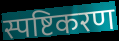
स्पष्टिकरण